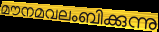
മൗനമവലംബിക്കുന്നു